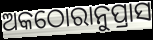
ଅକଠୋରାନୁପ୍ରାସ